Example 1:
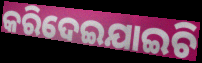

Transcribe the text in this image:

କରିଦେଇଯାଇଚି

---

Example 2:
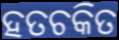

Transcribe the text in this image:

ହତଚକିତ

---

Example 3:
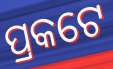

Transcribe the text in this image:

ପ୍ରକଟେ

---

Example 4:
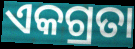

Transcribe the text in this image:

ଏକଗ୍ରତା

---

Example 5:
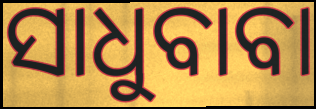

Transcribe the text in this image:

ସାଧୁବାବା